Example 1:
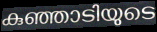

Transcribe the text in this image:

കുഞ്ഞാടിയുടെ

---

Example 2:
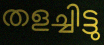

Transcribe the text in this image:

തളച്ചിട്ടു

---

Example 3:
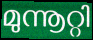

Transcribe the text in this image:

മുന്നൂറ്റി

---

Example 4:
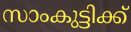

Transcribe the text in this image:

സാംകുട്ടിക്ക്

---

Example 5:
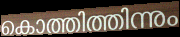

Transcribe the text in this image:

കൊത്തിത്തിന്നും